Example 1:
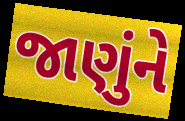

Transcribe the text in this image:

જાણુંને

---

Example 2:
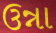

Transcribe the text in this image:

ઉન્ના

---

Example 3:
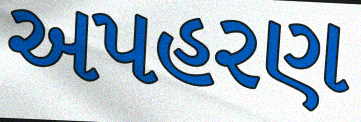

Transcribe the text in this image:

અપહરણ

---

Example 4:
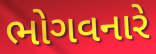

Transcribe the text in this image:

ભોગવનારે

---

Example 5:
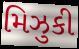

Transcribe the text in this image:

મિઝુકી